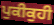
ਪੁਕੀਕੁਹੀ